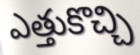
ఎత్తుకొచ్చి